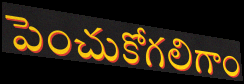
పెంచుకోగలిగాం